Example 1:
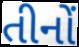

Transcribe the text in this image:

તીનોં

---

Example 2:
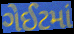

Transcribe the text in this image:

ગેઈટમાં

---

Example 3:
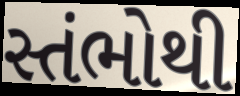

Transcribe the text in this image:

સ્તંભોથી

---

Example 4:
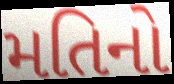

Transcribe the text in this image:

મતિનો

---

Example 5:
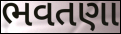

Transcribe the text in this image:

ભવતણા